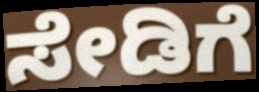
ಸೇಡಿಗೆ